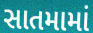
સાતમામાં